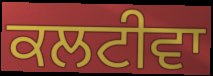
ਕਲਟੀਵਾ